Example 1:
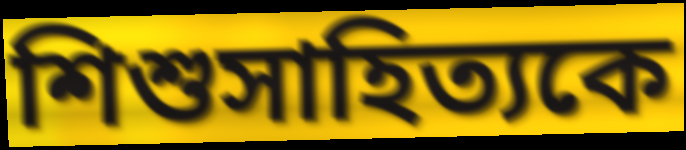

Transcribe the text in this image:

শিশুসাহিত্যকে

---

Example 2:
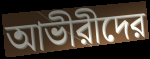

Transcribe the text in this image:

আভীরীদের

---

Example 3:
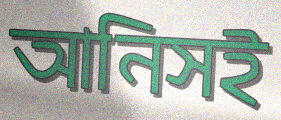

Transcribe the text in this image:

আনিসই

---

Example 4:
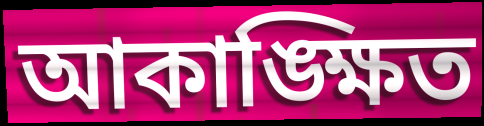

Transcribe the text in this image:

আকাঙ্ক্ষিত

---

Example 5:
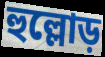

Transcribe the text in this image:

হুল্লোড়